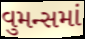
વુમન્સમાં